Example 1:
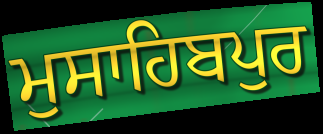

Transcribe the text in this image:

ਮੁਸਾਹਿਬਪੁਰ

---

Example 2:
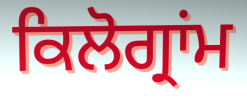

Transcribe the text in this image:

ਕਿਲੋਗ੍ਰਾਂਮ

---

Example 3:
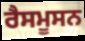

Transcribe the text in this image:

ਰੈਸਮੂਸਨ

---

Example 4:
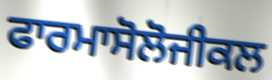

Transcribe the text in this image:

ਫਾਰਮਾਸੋਲੋਜੀਕਲ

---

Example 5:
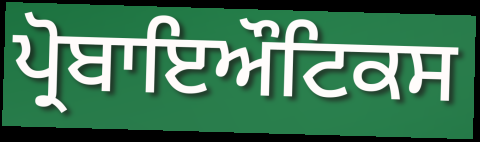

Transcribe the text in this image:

ਪ੍ਰੋਬਾਇਔਟਿਕਸ